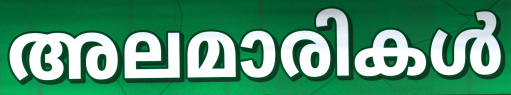
അലമാരികൾ